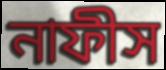
নাফীস